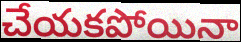
చేయకపోయినా